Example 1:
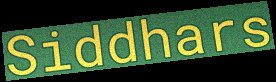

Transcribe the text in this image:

Siddhars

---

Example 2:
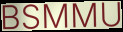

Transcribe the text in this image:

BSMMU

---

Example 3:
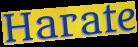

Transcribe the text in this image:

Harate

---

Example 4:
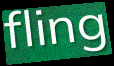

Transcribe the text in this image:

fling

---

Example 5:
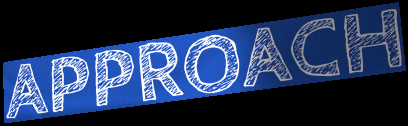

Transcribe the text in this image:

APPROACH